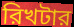
রিখটার